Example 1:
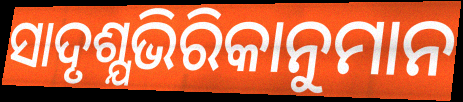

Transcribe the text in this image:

ସାଦୃଶ୍ଯଭିରିକାନୁମାନ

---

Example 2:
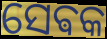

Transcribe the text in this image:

ସେଵକ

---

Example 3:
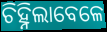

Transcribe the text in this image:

ଚିହ୍ନିଲାବେଳେ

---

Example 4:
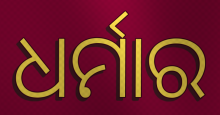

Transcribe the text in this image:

ଧର୍ମାର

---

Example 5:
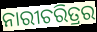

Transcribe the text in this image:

ନାରୀଚରିତ୍ରର